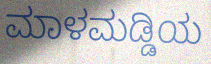
ಮಾಳಮಡ್ಡಿಯ